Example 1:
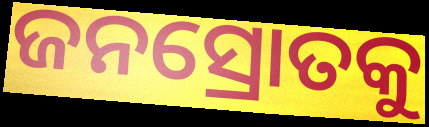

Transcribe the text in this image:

ଜନସ୍ରୋତକୁ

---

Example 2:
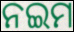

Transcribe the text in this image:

ନଇମ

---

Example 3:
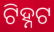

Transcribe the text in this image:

ଟିହ୍ନଟ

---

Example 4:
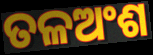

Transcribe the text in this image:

ତଳଅଂଶ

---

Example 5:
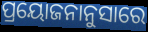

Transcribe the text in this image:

ପ୍ରୟୋଜନାନୁସାରେ